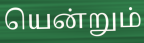
யென்றும்